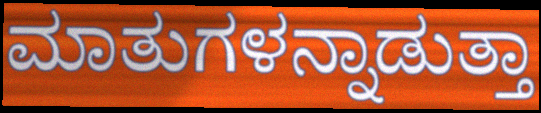
ಮಾತುಗಳನ್ನಾಡುತ್ತಾ